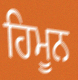
ਹਿਮੂਨ